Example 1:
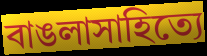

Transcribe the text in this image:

বাঙলাসাহিত্যে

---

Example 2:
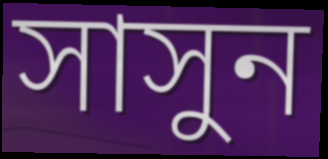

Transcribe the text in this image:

সাসুন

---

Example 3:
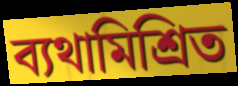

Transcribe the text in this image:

ব্যথামিশ্রিত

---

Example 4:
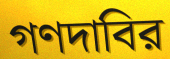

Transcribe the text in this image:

গণদাবির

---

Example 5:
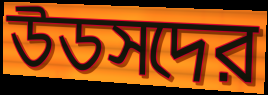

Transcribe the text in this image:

উডসদের